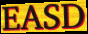
EASD